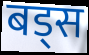
बड्स